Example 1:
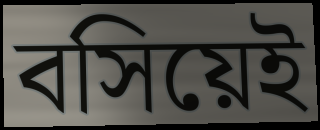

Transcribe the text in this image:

বসিয়েই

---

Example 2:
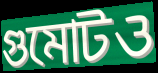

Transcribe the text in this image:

গুমোটও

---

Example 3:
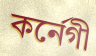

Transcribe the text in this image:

কর্নেগী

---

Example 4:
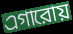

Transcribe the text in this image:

এগারোয়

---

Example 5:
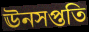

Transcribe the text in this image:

ঊনসপ্ততি